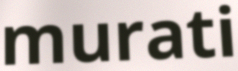
murati